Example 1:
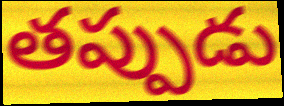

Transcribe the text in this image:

తప్పుడు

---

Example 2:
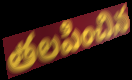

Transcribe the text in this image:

తలపించిన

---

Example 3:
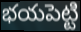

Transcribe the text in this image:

భయపెట్టి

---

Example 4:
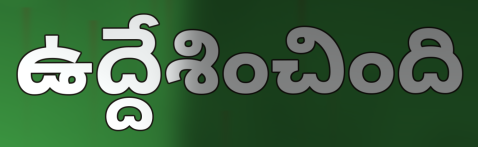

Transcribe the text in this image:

ఉద్దేశించింది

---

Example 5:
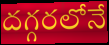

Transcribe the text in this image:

దగ్గరలోనే